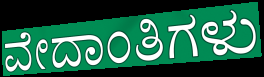
ವೇದಾಂತಿಗಳು